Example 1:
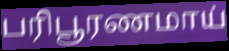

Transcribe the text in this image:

பரிபூரணமாய்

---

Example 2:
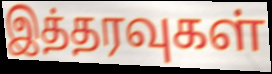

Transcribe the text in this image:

இத்தரவுகள்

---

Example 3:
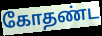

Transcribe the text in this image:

கோதண்ட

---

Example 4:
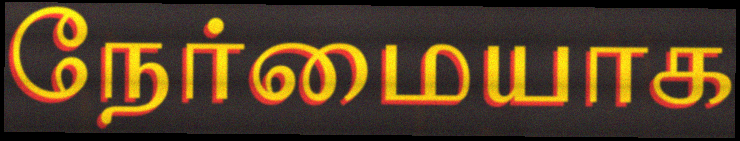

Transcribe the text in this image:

நேர்மையாக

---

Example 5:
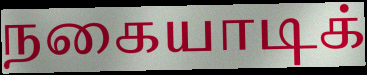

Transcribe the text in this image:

நகையாடிக்